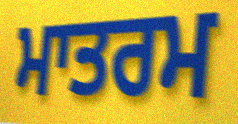
ਮਾਤਰਮ